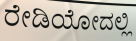
ರೇಡಿಯೋದಲ್ಲಿ